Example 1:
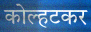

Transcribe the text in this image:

कोल्हटकर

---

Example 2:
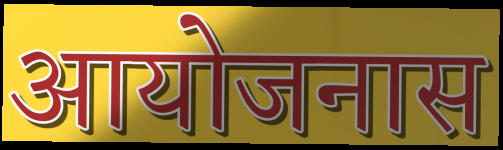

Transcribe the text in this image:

आयोजनास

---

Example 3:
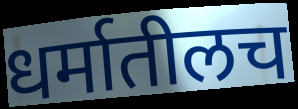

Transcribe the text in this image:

धर्मातीलच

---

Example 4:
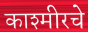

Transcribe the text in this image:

काश्मीरचे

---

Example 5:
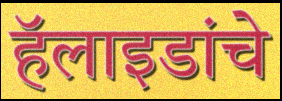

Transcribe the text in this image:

हॅलाइडांचे